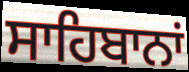
ਸਾਹਿਬਾਨਾਂ